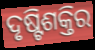
ଦୃଷ୍ଟିଶକ୍ତିର